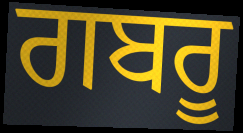
ਗਬਰੂ